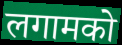
लगामको